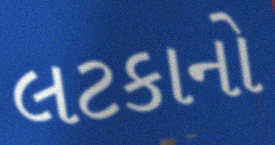
લટકાનો